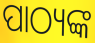
ପାଠ୍ୟଙ୍କ